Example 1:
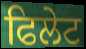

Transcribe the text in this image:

ਫਿਲੇਟ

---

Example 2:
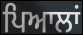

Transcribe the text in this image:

ਪਿਆਲਾਂ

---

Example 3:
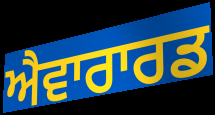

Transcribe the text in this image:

ਐਵਾਰਾਰਡ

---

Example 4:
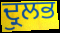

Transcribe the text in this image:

ਦ੍ਰੁਲਭ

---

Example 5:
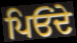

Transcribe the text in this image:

ਪਿਓਂਦੇ